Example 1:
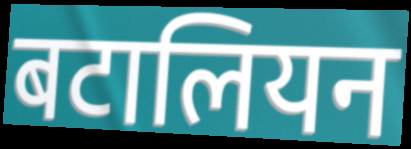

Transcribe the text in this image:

बटालियन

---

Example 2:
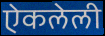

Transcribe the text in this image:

ऐकलेली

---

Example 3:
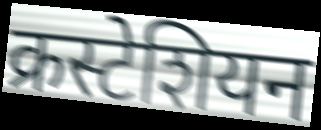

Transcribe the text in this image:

क्रस्टेशियन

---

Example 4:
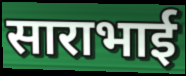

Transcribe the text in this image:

साराभाई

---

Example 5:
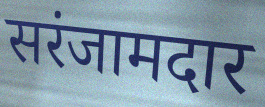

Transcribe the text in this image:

सरंजामदार